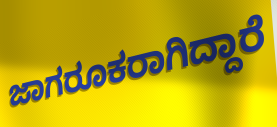
ಜಾಗರೂಕರಾಗಿದ್ದಾರೆ